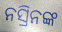
ନସ୍ରିନଙ୍କ